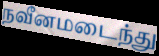
நவீனமடைந்து